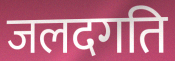
जलदगति